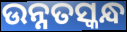
ଉନ୍ନତସ୍କନ୍ଧ